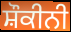
ਸ਼ੌਕੀਨੀ